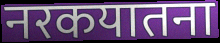
नरकयातना